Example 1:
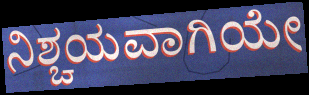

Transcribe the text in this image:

ನಿಶ್ಚಯವಾಗಿಯೇ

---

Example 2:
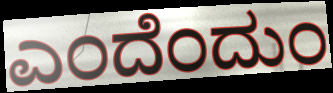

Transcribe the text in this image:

ಎಂದೆಂದುಂ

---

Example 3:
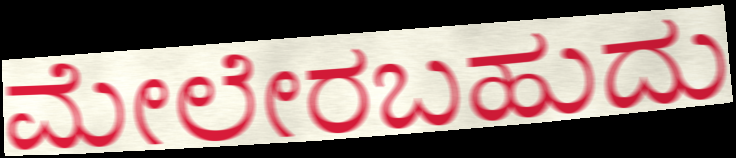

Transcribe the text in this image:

ಮೇಲೇರಬಹುದು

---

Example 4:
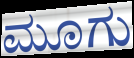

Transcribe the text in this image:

ಮೂಗು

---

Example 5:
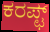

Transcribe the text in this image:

ಕರಪ್ಟ್